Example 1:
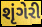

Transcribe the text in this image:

શૃંગેરી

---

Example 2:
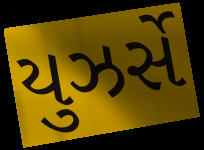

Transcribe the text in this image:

યુઝર્સે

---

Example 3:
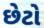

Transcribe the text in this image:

છેટો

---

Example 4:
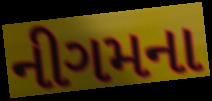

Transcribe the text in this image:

નીગમના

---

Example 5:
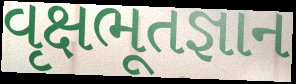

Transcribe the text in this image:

વૃક્ષભૂતજ્ઞાન